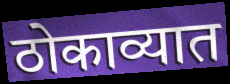
ठोकाव्यात